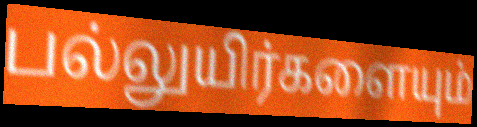
பல்லுயிர்களையும்